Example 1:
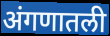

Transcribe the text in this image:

अंगणातली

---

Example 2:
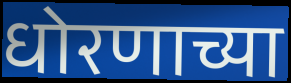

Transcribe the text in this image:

धोरणाच्या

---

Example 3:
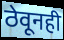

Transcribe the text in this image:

ठेवूनही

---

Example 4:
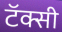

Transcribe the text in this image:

टॅक्सी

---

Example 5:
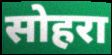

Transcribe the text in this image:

सोहरा